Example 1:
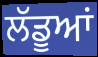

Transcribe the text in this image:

ਲੱਡੂਆਂ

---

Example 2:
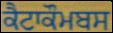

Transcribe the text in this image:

ਕੈਟਾਕੌਮਬਸ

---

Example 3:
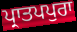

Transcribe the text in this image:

ਪ੍ਰਾਤਪਪੁਰਾ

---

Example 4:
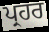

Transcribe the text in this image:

ਪ੍ਰਹਰ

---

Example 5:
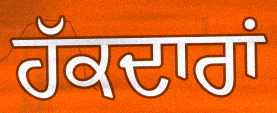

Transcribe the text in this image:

ਹੱਕਦਾਰਾਂ